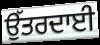
ਉੱਤਰਦਾਈ